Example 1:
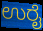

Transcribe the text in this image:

ಉರೈ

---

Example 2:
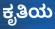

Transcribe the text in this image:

ಕೃತಿಯ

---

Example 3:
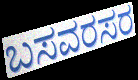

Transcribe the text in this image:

ಬಸವರಸರ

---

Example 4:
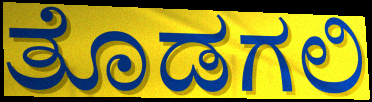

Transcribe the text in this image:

ತೊಡಗಲಿ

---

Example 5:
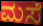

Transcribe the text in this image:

ಮಸೆ